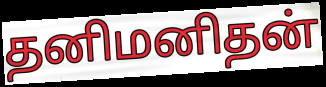
தனிமனிதன்